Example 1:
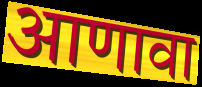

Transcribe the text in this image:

आणावा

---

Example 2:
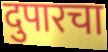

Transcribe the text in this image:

दुपारचा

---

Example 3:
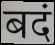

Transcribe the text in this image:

बदं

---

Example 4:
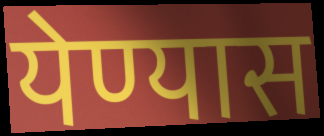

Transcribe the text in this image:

येण्यास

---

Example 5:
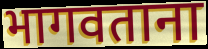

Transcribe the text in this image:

भागवताना